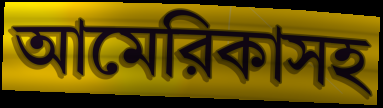
আমেরিকাসহ